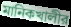
মানিকখালীর